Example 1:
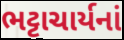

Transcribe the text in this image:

ભટ્ટાચાર્યનાં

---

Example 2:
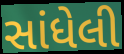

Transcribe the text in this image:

સાંધેલી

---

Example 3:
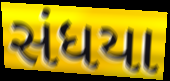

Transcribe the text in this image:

સંધયા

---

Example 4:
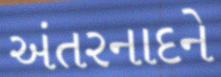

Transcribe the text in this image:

અંતરનાદને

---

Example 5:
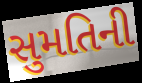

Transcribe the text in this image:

સુમતિની